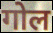
गोल